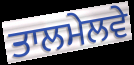
ਤਾਲਮੇਲਵੇ